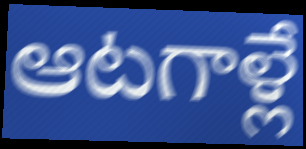
ఆటగాళ్లే